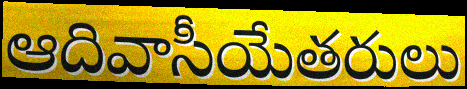
ఆదివాసీయేతరులు